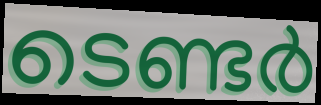
ടെണ്ടർ